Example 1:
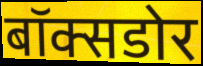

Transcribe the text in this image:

बॉक्सडोर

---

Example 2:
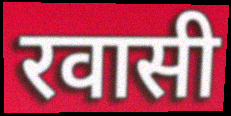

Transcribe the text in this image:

रवासी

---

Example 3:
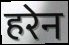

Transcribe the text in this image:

हरेन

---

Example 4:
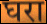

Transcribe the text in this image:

घरा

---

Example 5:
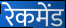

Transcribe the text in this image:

रेकमेंड